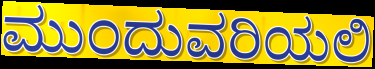
ಮುಂದುವರಿಯಲಿ